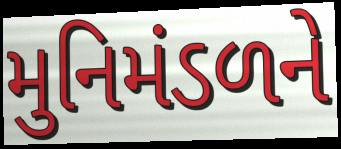
મુનિમંડળને